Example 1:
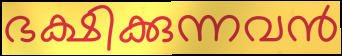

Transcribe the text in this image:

ഭക്ഷിക്കുന്നവൻ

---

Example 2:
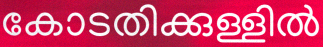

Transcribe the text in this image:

കോടതിക്കുള്ളിൽ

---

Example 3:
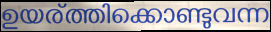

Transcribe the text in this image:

ഉയര്ത്തിക്കൊണ്ടുവന്ന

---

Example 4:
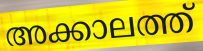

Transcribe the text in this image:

അക്കാലത്ത്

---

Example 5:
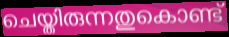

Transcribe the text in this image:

ചെയ്തിരുന്നതുകൊണ്ട്